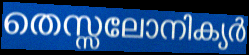
തെസ്സലോനിക്യർ